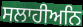
ਸਲਾਹੀਅਨਿ